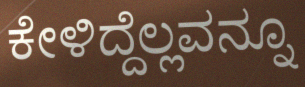
ಕೇಳಿದ್ದೆಲ್ಲವನ್ನೂ